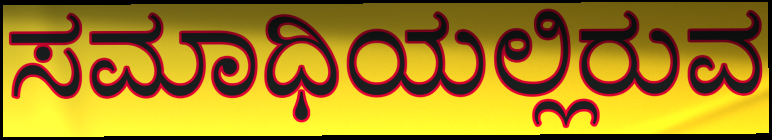
ಸಮಾಧಿಯಲ್ಲಿರುವ